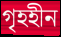
গৃহহীন